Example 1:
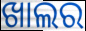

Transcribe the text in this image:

ଖାଲର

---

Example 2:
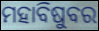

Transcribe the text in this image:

ମହାବିଷୁବର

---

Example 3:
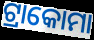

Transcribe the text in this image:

ଟ୍ରାକୋମା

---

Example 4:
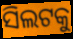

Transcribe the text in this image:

ସିଲଟକୁ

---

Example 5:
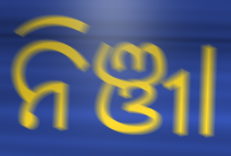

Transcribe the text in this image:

ନିଞ୍ଜା